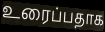
உரைப்பதாக